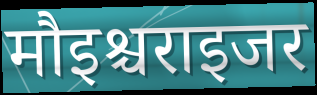
मौइश्चराइजर